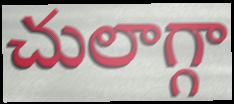
చులాగ్గా